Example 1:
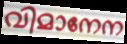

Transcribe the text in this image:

വിമാനേന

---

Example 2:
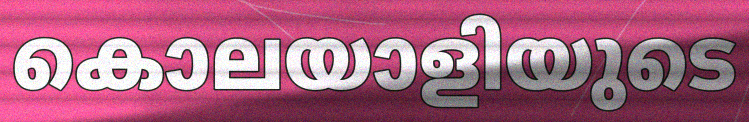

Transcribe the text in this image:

കൊലയാളിയുടെ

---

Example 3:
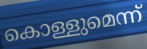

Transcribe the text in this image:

കൊള്ളുമെന്ന്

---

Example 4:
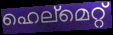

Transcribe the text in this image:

ഹെല്മെറ്റ്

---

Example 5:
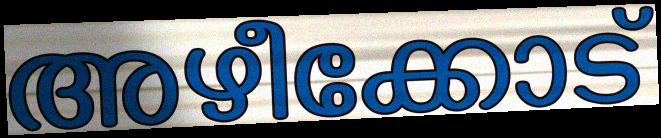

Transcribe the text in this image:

അഴീക്കോട്